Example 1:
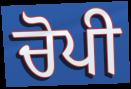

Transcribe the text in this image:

ਚੋਪੀ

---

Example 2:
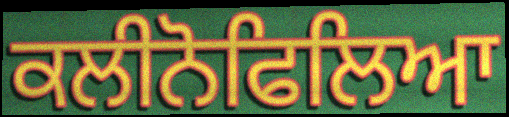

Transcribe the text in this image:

ਕਲੀਨੋਫਿਲਿਆ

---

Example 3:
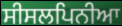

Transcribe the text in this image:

ਸੀਸਲਪਿਨੀਆ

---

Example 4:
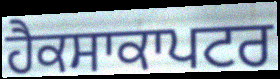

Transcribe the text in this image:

ਹੈਕਸਾਕਾਪਟਰ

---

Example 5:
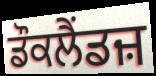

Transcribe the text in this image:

ਡੌਕਲੈਂਡਜ਼